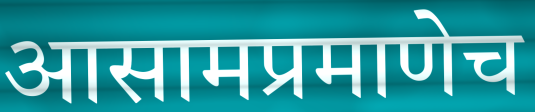
आसामप्रमाणेच